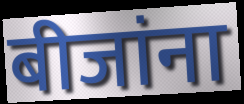
बीजांना